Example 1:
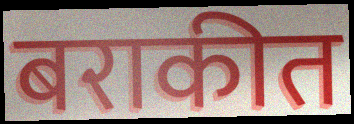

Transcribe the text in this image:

बराकीत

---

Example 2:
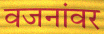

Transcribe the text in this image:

वजनांवर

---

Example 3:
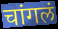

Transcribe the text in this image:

चांगलं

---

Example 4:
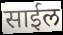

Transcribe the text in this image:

साईल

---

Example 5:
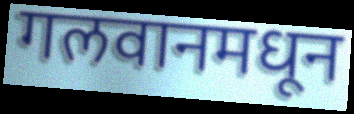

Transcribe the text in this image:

गलवानमधून